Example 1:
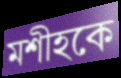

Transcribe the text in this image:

মশীহকে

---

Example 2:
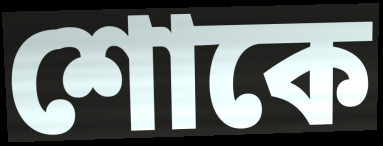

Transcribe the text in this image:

শোকে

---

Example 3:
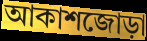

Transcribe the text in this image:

আকাশজোড়া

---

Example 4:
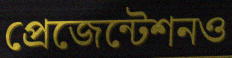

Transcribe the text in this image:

প্রেজেন্টেশনও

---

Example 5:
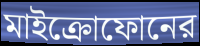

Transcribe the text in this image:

মাইক্রোফোনের